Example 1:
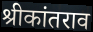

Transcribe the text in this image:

श्रीकांतराव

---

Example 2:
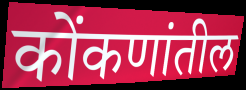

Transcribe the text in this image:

कोंकणांतील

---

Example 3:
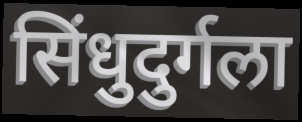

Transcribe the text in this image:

सिंधुदुर्गला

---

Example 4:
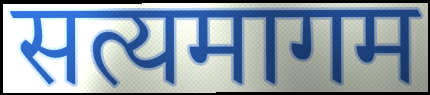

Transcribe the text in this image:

सत्यमागम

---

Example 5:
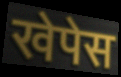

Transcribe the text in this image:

खेपेस